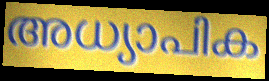
അധ്യാപിക